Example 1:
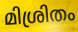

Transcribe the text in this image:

മിശ്രിതം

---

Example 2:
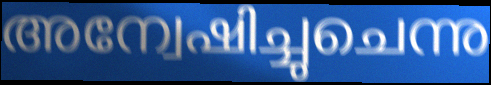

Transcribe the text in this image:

അന്വേഷിച്ചുചെന്നു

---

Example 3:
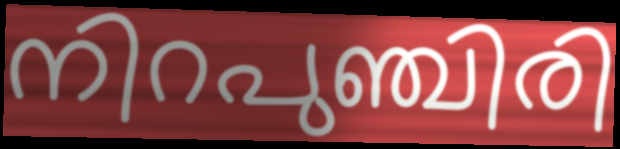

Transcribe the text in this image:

നിറപുഞ്ചിരി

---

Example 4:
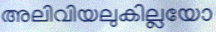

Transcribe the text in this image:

അലിവിയലുകില്ലയോ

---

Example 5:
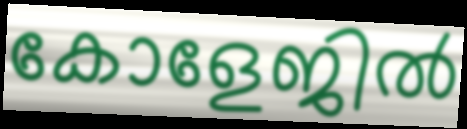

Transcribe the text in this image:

കോളേജിൽ